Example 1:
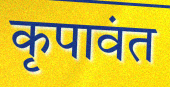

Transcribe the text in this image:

कृपावंत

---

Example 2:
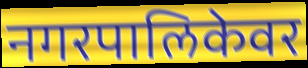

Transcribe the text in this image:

नगरपालिकेवर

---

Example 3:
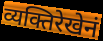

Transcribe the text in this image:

व्यक्तिरेखेनं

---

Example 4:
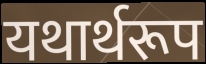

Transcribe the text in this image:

यथार्थरूप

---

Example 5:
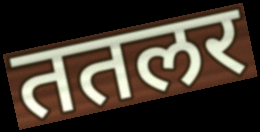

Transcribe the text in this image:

ततलर